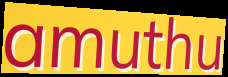
amuthu